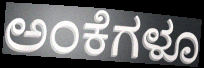
ಅಂಕೆಗಳೂ